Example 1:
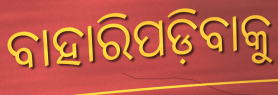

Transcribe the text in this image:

ବାହାରିପଡ଼ିବାକୁ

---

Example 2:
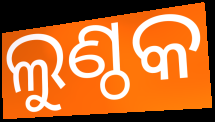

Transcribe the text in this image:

ଲୁଣ୍ଠକ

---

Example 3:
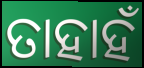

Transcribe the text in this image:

ତାହାହଁ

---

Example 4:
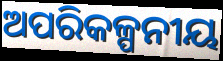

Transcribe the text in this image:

ଅପରିକଳ୍ପନୀୟ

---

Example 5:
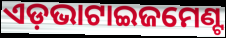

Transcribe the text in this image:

ଏଡ଼ଭାଟାଇଜମେଣ୍ଟ